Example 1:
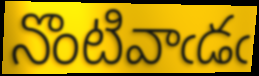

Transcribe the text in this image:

నొంటివాఁడఁ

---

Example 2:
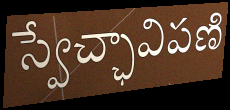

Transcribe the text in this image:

స్వేచ్ఛావిపణి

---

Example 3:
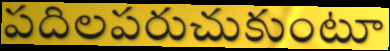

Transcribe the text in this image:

పదిలపరుచుకుంటూ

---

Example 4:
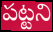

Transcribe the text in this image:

పట్టని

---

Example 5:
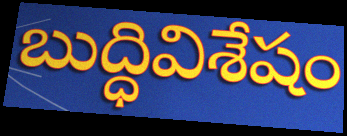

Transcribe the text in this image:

బుద్ధివిశేషం